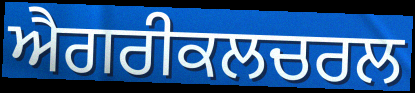
ਐਗਰੀਕਲਚਰਲ